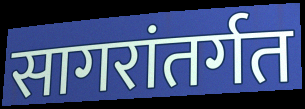
सागरांतर्गत